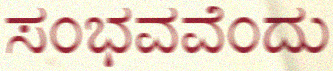
ಸಂಭವವೆಂದು